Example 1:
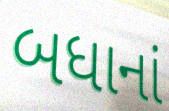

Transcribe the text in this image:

બધાનાં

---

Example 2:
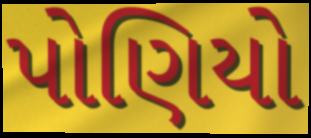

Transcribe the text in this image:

પોણિયો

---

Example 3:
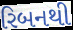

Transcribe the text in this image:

રિબનથી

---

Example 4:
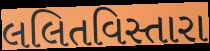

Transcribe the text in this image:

લલિતવિસ્તારા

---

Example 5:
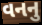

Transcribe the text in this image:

વનનુ